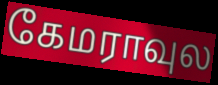
கேமராவுல